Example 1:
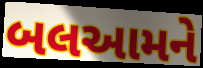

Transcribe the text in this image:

બલઆમને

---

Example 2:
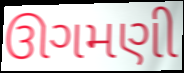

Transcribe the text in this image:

ઊગમણી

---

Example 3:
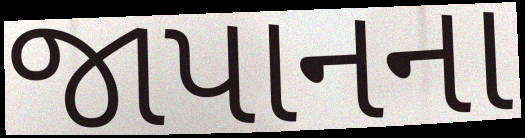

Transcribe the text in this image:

જાપાનના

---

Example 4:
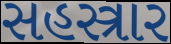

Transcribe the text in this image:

સહસ્ત્રાર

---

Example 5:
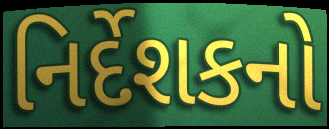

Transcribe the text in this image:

નિર્દેશકનો